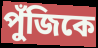
পুঁজিকে